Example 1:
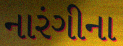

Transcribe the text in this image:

નારંગીના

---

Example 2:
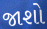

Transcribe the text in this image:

જાશો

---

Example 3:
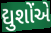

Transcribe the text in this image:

દ્યુશોંએ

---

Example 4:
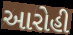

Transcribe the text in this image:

આરોહી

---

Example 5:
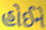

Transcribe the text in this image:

હોઈને